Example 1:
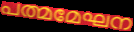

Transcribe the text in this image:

പത്മമേഘന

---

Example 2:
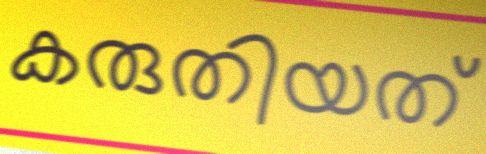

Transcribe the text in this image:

കരുതിയത്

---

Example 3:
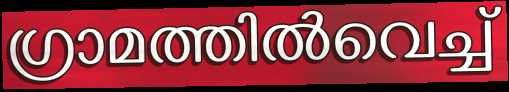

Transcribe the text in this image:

ഗ്രാമത്തിൽവെച്ച്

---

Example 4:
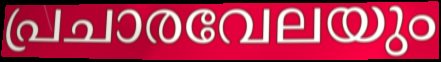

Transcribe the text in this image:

പ്രചാരവേലയും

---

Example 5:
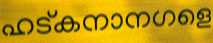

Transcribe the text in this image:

ഹട്കനാനഗളെ